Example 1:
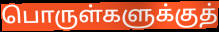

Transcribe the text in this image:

பொருள்களுக்குத்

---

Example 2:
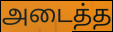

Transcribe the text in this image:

அடைத்த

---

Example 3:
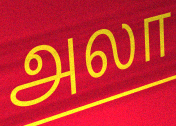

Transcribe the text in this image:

அலா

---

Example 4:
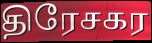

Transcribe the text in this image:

திரேசகர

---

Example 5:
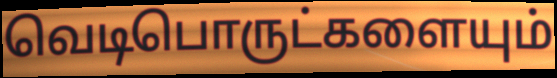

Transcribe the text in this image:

வெடிபொருட்களையும்